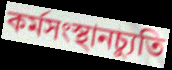
কর্মসংস্থানচ্যুতি